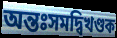
অন্তঃসমদ্বিখণ্ডক